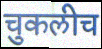
चुकलीच